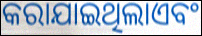
କରାଯାଇଥିଲାଏବଂ